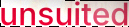
unsuited